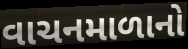
વાચનમાળાનો